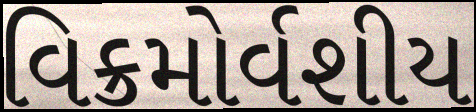
વિક્રમોર્વશીય